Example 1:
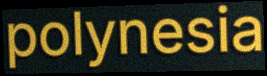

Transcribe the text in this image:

polynesia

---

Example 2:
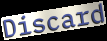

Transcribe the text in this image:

Discard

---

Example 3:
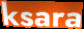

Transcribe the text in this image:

ksara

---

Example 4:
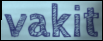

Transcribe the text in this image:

vakit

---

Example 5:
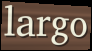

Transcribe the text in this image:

largo